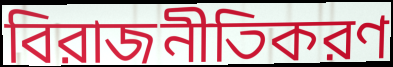
বিরাজনীতিকরণ